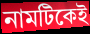
নামটিকেই